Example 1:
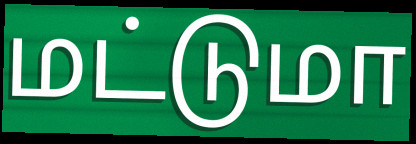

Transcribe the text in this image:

மட்டுமா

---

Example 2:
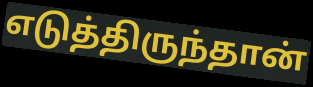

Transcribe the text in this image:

எடுத்திருந்தான்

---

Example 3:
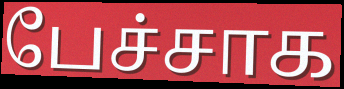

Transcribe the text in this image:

பேச்சாக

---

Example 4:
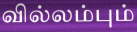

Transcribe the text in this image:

வில்லம்பும்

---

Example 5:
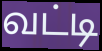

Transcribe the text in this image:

வட்டி